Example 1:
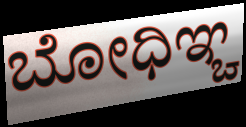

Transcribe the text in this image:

ಬೋಧಿಞ್ಚ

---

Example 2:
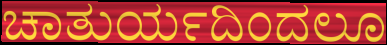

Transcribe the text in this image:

ಚಾತುರ್ಯದಿಂದಲೂ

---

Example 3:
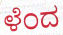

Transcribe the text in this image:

ಳೆಂದ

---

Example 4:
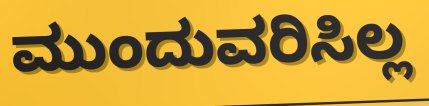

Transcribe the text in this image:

ಮುಂದುವರಿಸಿಲ್ಲ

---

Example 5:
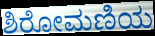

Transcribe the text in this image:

ಶಿರೋಮಣಿಯ